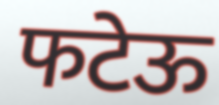
फटेऊ